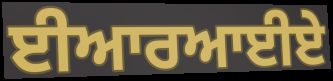
ਈਆਰਆਈਏ